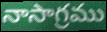
నాసాగ్రము